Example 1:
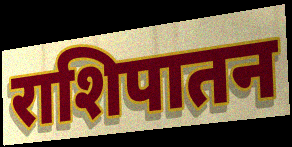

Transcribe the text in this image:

राशिपातन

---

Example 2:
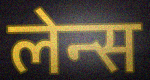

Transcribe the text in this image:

लेन्स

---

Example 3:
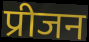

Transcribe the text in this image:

प्रीजन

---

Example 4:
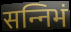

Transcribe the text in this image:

सन्निभं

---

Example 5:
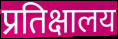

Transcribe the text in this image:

प्रतिक्षालय